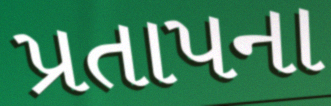
પ્રતાપના